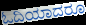
ಓದಿಯಾದರೂ